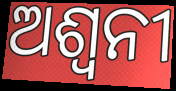
ଅଶ୍ଵନୀ